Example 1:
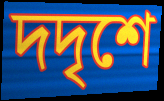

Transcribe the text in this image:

দদৃশে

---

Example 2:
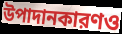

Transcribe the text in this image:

উপাদানকারণও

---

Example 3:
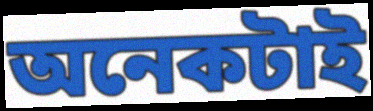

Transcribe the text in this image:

অনেকটাই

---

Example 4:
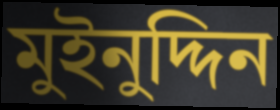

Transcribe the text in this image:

মুইনুদ্দিন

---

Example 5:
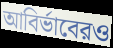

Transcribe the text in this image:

আবির্ভাবেরও